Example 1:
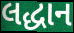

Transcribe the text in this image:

લદ્ધાન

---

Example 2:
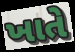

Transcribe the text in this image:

ખાતે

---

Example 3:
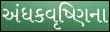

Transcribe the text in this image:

અંધકવૃષ્ણિના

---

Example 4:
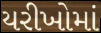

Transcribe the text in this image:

યરીખોમાં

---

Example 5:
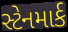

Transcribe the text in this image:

સ્ટેનમાર્ક